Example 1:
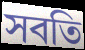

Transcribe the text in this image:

সবতি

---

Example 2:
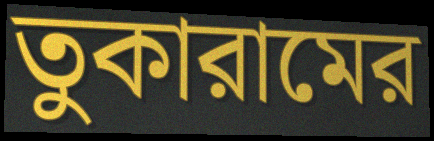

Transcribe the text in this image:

তুকারামের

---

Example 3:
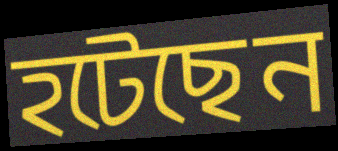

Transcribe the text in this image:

হটেছেন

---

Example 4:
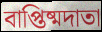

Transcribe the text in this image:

বাপ্তিষ্মদাতা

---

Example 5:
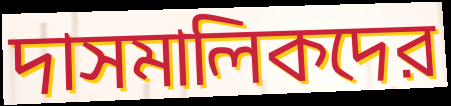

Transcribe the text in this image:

দাসমালিকদের